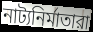
নাট্যনির্মাতারা